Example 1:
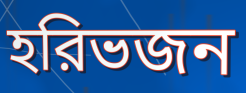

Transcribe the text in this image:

হরিভজন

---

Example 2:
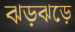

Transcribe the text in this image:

ঝড়ঝড়ে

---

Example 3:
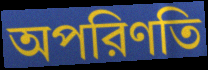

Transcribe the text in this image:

অপরিণতি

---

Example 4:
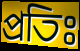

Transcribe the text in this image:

প্রতিঃ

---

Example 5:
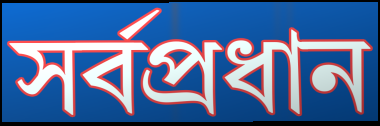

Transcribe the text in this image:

সর্বপ্রধান